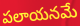
పలాయనమే